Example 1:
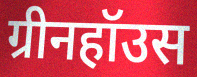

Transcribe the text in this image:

ग्रीनहॉउस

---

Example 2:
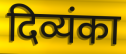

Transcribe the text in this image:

दिव्यंका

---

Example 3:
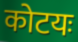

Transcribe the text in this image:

कोटयः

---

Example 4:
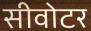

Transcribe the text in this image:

सीवोटर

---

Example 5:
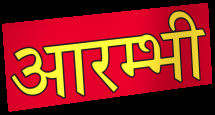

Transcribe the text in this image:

आरम्भी